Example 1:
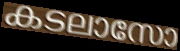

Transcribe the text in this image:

കടലാസോ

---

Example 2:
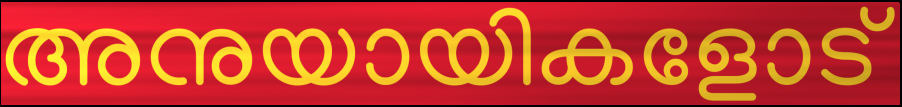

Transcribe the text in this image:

അനുയായികളോട്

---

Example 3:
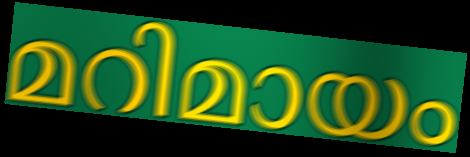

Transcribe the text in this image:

മറിമായം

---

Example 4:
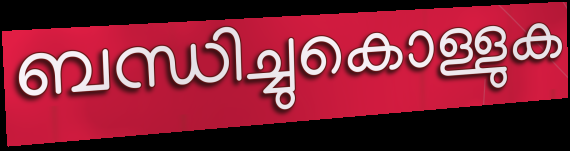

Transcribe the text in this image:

ബന്ധിച്ചുകൊള്ളുക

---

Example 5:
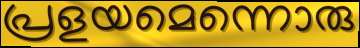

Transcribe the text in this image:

പ്രളയമെന്നൊരു